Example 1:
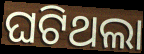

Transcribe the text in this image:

ଘଟିଥଲା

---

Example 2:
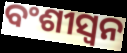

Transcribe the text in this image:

ବଂଶୀସ୍ୱନ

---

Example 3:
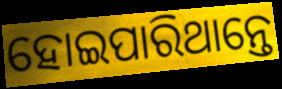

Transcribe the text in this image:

ହୋଇପାରିଥାନ୍ତେ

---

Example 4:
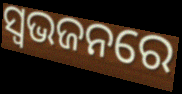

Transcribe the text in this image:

ସ୍ଵଭଜନରେ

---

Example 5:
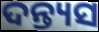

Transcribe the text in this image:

ଦନ୍ତ୍ୟସ